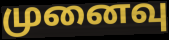
முனைவு